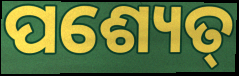
ପଶ୍ୟେତ୍